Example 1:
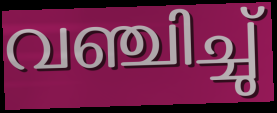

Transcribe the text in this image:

വഞ്ചിച്ചു്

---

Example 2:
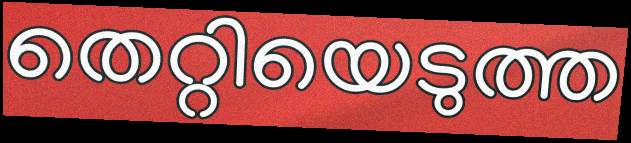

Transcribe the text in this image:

തെറ്റിയെടുത്ത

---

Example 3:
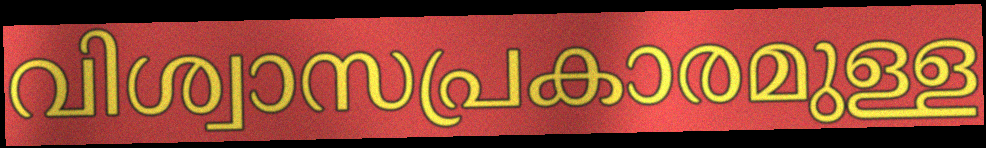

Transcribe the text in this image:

വിശ്വാസപ്രകാരമുള്ള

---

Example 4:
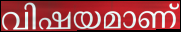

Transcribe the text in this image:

വിഷയമാണ്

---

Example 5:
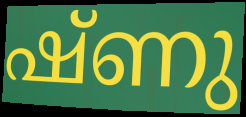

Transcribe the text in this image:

ഷ്ണു